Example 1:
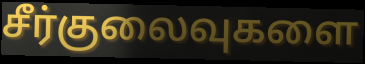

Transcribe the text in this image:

சீர்குலைவுகளை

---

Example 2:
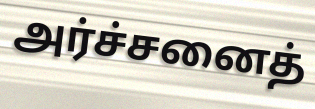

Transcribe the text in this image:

அர்ச்சனைத்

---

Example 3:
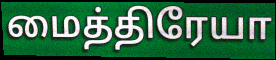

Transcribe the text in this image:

மைத்திரேயா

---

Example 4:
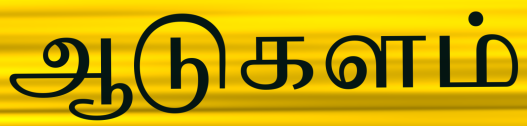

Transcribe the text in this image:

ஆடுகளம்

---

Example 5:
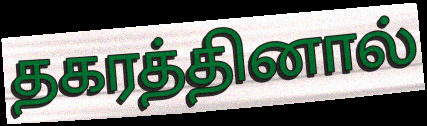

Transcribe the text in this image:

தகரத்தினால்